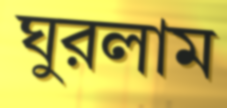
ঘুরলাম